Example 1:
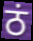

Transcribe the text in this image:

ठं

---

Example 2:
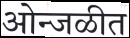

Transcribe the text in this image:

ओन्जळीत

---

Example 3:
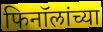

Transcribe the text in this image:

फिनॉलांच्या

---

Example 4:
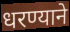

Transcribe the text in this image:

धरण्याने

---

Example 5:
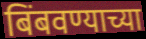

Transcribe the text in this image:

बिंबवण्याच्या